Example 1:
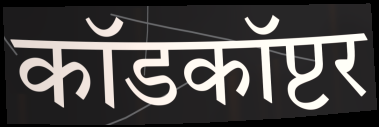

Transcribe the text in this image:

कॉडकॉप्टर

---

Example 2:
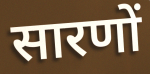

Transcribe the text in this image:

सारणों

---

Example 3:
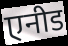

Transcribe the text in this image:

एनीड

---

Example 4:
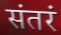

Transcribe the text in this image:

संतरं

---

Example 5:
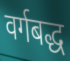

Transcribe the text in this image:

वर्गबद्ध